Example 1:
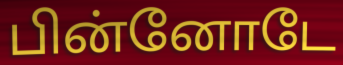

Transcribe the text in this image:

பின்னோடே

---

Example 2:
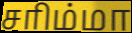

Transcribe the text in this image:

சரிம்மா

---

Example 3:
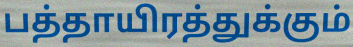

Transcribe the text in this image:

பத்தாயிரத்துக்கும்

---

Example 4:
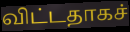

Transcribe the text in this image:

விட்டதாகச்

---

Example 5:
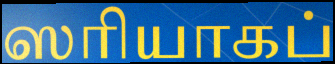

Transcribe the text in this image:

ஸரியாகப்